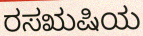
ರಸಋಷಿಯ